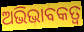
ଅଭିଭାବକତ୍ବ